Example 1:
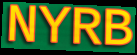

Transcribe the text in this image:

NYRB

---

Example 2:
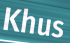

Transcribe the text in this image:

Khus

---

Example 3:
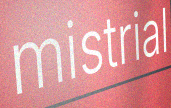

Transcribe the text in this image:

mistrial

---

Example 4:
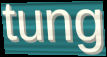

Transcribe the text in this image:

tung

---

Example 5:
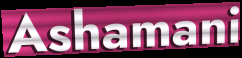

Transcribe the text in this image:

Ashamani